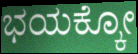
ಭಯಕ್ಕೋ